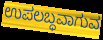
ಉಪಲಬ್ಧವಾಗುವ